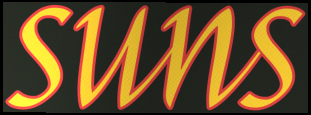
suns